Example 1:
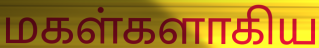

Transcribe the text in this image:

மகள்களாகிய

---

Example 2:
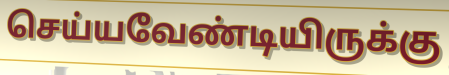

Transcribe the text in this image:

செய்யவேண்டியிருக்கு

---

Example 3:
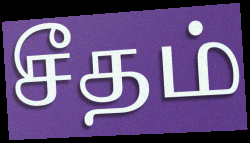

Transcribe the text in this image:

சீதம்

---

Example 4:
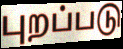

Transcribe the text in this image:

புறப்படு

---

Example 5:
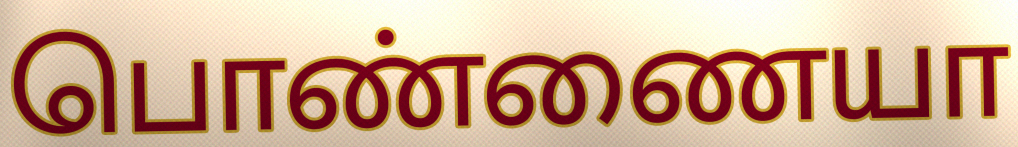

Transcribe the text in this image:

பொண்ணையா